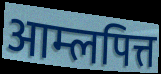
आम्लपित्त